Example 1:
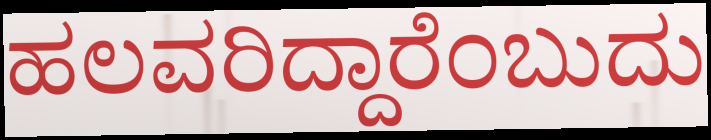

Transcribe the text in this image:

ಹಲವರಿದ್ದಾರೆಂಬುದು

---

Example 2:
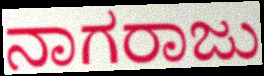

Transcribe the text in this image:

ನಾಗರಾಜು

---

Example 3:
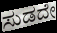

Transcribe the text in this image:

ಸುಡದೇ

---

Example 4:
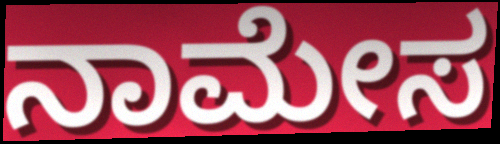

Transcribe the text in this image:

ನಾಮೇಸ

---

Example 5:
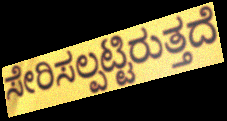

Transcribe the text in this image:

ಸೇರಿಸಲ್ಪಟ್ಟಿರುತ್ತದೆ